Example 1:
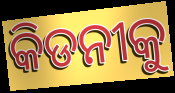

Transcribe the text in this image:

କିଡନୀକୁ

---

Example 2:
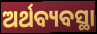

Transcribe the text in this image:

ଅର୍ଥବ୍ୟବସ୍ଥା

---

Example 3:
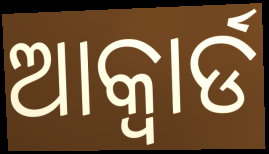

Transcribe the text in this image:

ଆକ୍ୱାର୍ଡ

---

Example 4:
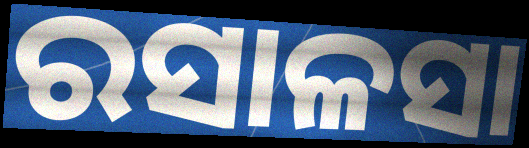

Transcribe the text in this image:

ରସାଳସା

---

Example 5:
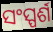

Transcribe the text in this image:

ସଂସ୍ପର୍ଶ